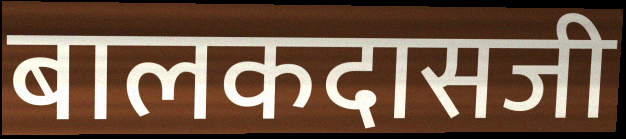
बालकदासजी